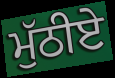
ਮੁੱਠੀਏ